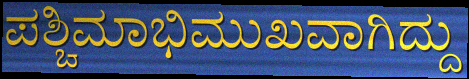
ಪಶ್ಚಿಮಾಭಿಮುಖವಾಗಿದ್ದು